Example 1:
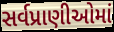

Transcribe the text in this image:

સર્વપ્રાણીઓમાં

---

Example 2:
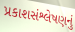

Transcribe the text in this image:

પ્રકાશસંશ્લેષણનું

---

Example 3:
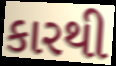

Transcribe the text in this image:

કારથી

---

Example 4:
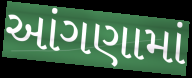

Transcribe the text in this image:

આંગણામાં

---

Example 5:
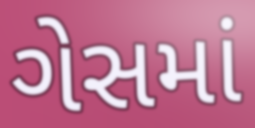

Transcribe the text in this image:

ગેસમાં